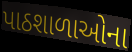
પાઠશાળાઓના